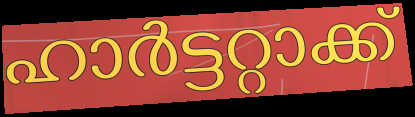
ഹാർട്ടറ്റാക്ക്